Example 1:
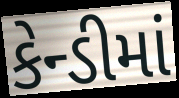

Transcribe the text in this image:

કેન્ડીમાં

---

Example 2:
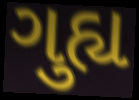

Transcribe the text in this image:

ગુહ્ય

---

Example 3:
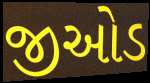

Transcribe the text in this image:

જીઓડ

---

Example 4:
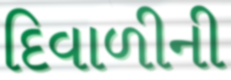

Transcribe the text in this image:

દિવાળીની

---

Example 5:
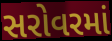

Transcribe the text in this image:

સરોવરમાં